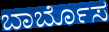
ಬಾರ್ಬೊಸ